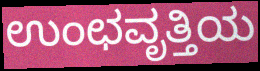
ಉಂಛವೃತ್ತಿಯ